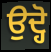
ਉਦ੍ਹੋ